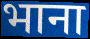
भाना